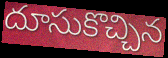
దూసుకొచ్చిన